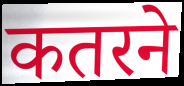
कतरने